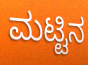
ಮಟ್ಟಿನ